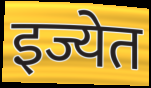
इज्येत